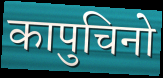
कापुचिनो